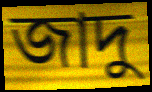
জাদু